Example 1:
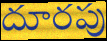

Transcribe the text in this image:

దూరపు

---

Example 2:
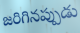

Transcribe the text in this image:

జరిగినప్పుడు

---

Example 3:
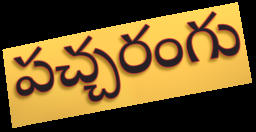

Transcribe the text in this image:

పచ్చరంగు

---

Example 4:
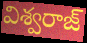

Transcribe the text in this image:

విశ్వరాజ్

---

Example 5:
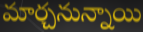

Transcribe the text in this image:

మార్చనున్నాయి